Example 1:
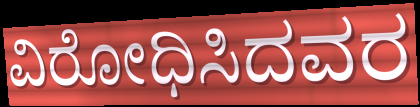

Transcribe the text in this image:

ವಿರೋಧಿಸಿದವರ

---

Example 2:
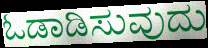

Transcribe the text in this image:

ಓಡಾಡಿಸುವುದು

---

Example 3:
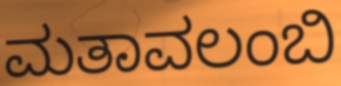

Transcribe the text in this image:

ಮತಾವಲಂಬಿ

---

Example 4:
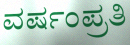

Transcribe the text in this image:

ವರ್ಷಂಪ್ರತಿ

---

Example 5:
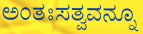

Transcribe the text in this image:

ಅಂತಃಸತ್ವವನ್ನೂ